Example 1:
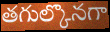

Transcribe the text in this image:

తగుల్కొనగా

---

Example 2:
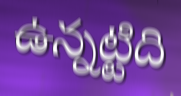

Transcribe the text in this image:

ఉన్నట్టిది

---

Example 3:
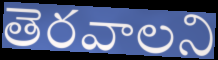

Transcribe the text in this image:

తెరవాలని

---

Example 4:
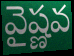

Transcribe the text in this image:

వైష్ణవ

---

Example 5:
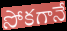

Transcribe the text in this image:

సోకగానే